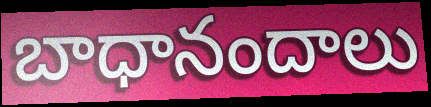
బాధానందాలు